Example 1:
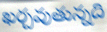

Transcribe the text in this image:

ఖర్చవుతున్నది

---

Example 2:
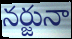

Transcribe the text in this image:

నర్జునా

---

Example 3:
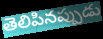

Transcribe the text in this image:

తెలిపినప్పుడు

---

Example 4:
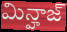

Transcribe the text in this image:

మిన్హాజ్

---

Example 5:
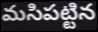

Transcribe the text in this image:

మసిపట్టిన